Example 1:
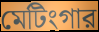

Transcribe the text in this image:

মেটিংগার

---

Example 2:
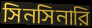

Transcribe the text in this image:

সিনসিনারি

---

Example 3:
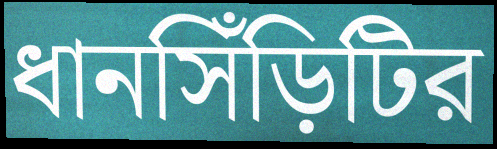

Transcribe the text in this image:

ধানসিঁড়িটির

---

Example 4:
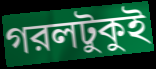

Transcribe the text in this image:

গরলটুকুই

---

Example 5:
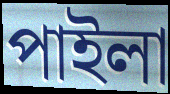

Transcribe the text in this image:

পাইলা